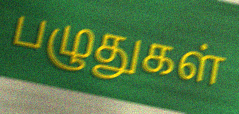
பழுதுகள்